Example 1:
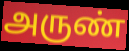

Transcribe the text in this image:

அருண்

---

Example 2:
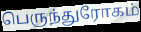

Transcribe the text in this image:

பெருந்துரோகம்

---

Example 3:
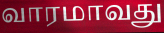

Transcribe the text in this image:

வாரமாவது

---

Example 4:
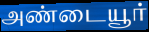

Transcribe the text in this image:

அண்டையூர்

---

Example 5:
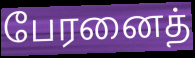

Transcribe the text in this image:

பேரனைத்